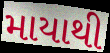
માયાથી